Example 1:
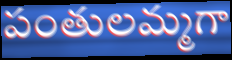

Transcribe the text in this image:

పంతులమ్మగా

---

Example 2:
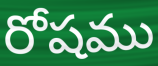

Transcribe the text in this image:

రోషము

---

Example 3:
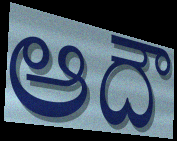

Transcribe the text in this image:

ఆదౌ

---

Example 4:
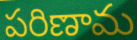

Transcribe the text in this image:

పరిణామ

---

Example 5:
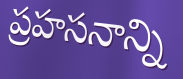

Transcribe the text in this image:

ప్రహసనాన్ని